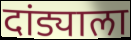
दांड्याला